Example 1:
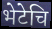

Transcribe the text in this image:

भेटेचि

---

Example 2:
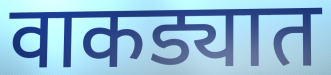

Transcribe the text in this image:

वाकड्यात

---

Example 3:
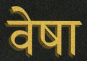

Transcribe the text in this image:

वेषा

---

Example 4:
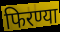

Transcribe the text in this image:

फिरण्या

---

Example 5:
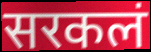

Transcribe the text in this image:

सरकलं